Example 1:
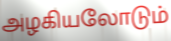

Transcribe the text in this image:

அழகியலோடும்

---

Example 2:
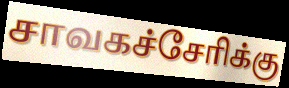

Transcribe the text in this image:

சாவகச்சேரிக்கு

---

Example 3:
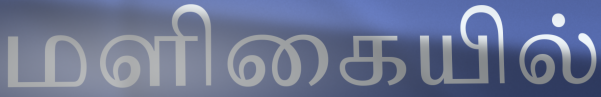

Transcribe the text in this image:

மளிகையில்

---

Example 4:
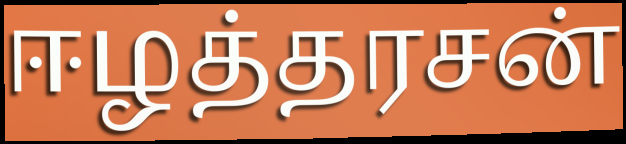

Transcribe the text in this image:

ஈழத்தரசன்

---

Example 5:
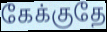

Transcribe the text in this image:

கேக்குதே